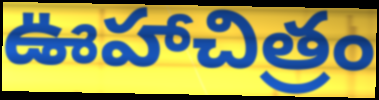
ఊహాచిత్రం